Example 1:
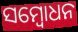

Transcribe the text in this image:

ସମ୍ବୋଧନ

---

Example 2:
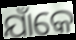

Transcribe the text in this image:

ଯାଁକେ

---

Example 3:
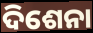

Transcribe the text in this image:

ଦିଶେନା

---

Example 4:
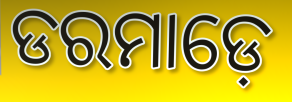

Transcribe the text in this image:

ଡରମାଡ଼େ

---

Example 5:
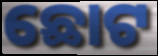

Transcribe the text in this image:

ଛୋଟ